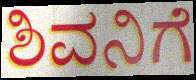
ಶಿವನಿಗೆ